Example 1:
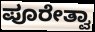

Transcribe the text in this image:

ಪೂರೇತ್ವಾ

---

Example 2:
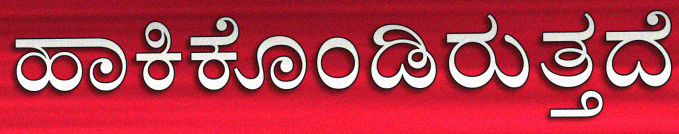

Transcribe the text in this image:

ಹಾಕಿಕೊಂಡಿರುತ್ತದೆ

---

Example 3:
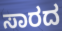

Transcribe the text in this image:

ಸಾರದ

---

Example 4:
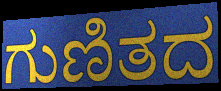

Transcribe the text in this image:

ಗುಣಿತದ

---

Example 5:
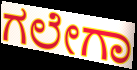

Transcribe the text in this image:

ಗಲೇಗಾ